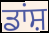
ਡਾਂਸ਼